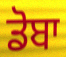
ਡੋਬਾ